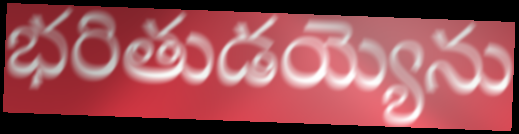
భరితుడయ్యెను